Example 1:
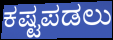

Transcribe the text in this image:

ಕಷ್ಟಪಡಲು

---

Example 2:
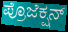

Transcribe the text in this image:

ಪ್ರೊಜೆಕ್ಷನ್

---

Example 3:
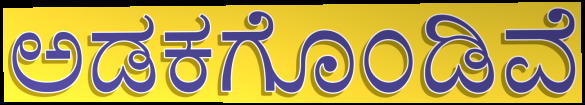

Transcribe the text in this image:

ಅಡಕಗೊಂಡಿವೆ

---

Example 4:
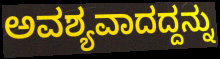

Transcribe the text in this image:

ಅವಶ್ಯವಾದದ್ದನ್ನು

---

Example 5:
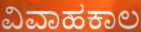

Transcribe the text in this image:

ವಿವಾಹಕಾಲ